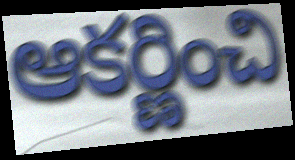
ఆకర్ణించి